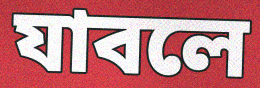
যাবলে